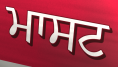
ਮਾਸਟ